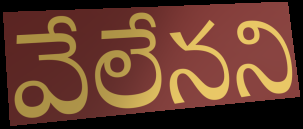
వేలేనని